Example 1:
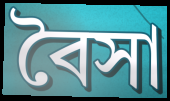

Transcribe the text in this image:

বৈসা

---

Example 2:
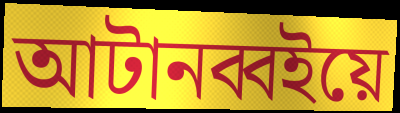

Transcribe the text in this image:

আটানব্বইয়ে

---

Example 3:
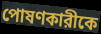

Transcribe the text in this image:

পোষণকারীকে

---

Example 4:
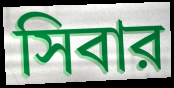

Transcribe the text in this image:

সিবার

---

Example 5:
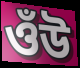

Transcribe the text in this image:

ওঁউ